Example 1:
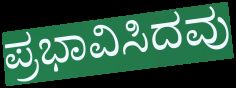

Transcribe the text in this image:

ಪ್ರಭಾವಿಸಿದವು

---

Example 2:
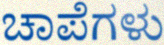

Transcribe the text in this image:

ಚಾಪೆಗಳು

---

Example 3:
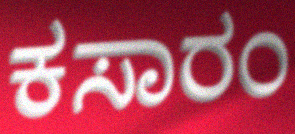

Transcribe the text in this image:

ಕಸಾರಂ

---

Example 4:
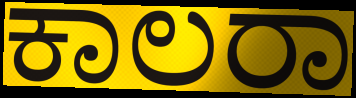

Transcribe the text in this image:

ಕಾಲರಾ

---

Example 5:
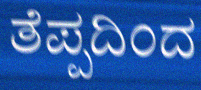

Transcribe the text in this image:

ತೆಪ್ಪದಿಂದ